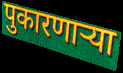
पुकारणार्‍या